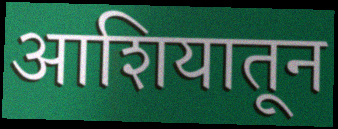
आशियातून